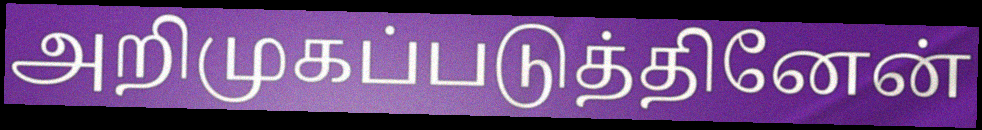
அறிமுகப்படுத்தினேன்